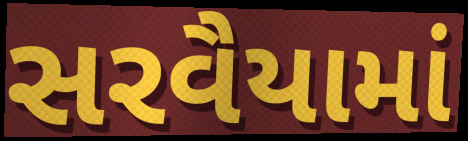
સરવૈયામાં